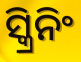
ସ୍କ୍ରିନିଂ